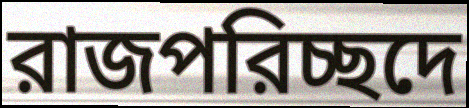
রাজপরিচ্ছদে